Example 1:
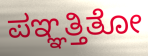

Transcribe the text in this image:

ಪಞ್ಞತ್ತಿತೋ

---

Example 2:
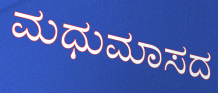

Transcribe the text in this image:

ಮಧುಮಾಸದ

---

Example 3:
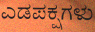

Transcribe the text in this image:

ಎಡಪಕ್ಷಗಳು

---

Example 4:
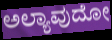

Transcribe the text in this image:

ಅಲ್ಯಾವುದೋ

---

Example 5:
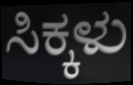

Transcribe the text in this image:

ಸಿಕ್ಕಳು